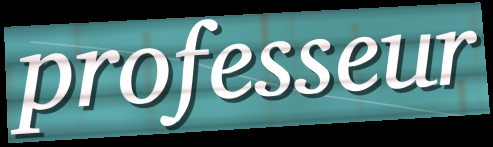
professeur